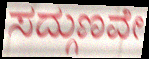
ಸದ್ಗುಣವೇ